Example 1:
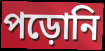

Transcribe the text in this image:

পড়োনি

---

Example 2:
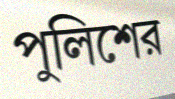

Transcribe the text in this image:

পুলিশের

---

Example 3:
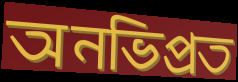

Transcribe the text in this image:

অনভিপ্রত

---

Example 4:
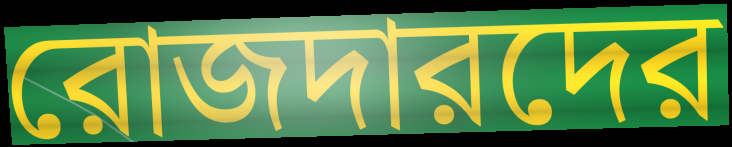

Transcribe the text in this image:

রোজদারদের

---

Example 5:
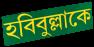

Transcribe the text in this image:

হবিবুল্লাকে